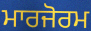
ਮਾਰਜੋਰਮ